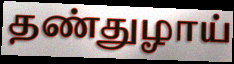
தண்துழாய்